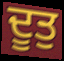
ਦੂਤੁ